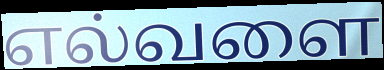
எல்வளை